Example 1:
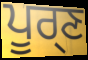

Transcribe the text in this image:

ਪੂਰ੍ਣ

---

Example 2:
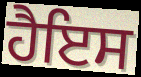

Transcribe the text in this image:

ਹੈਇਸ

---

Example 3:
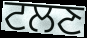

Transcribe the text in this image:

ਟਲਣ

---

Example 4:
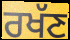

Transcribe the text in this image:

ਰਖੱਣ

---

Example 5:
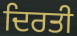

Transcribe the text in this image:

ਦਿਰਤੀ